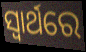
ସ୍ବାର୍ଥରେ